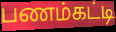
பணம்கட்டி